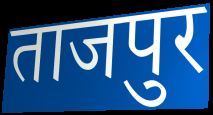
ताजपुर